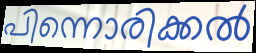
പിന്നൊരിക്കൽ